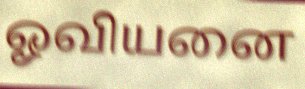
ஓவியனை